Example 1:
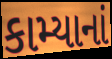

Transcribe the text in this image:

કામ્યાનાં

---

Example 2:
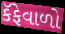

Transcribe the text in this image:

કૅફેવાળો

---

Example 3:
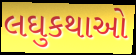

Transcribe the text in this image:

લઘુકથાઓ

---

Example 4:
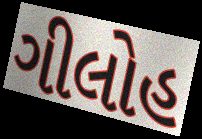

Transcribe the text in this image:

ગીલોહ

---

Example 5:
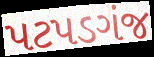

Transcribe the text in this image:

પટપડગંજ